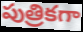
పుత్రికగా